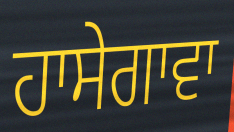
ਹਾਸੇਗਾਵਾ